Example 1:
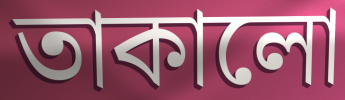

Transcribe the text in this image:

তাকালো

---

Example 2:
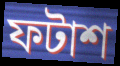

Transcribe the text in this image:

ফটাশ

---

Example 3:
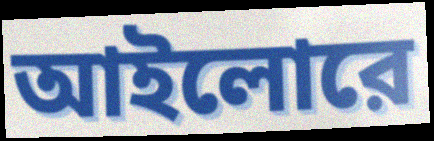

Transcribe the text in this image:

আইলোরে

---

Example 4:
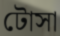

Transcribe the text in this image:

টোসা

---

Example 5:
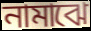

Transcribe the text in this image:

নামাঝে